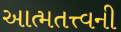
આત્મતત્ત્વની